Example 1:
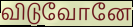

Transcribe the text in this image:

விடுவோனே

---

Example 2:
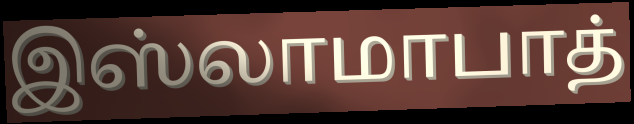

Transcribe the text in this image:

இஸ்லாமாபாத்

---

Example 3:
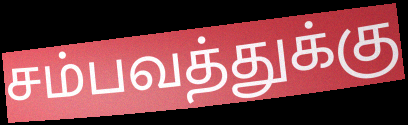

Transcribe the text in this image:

சம்பவத்துக்கு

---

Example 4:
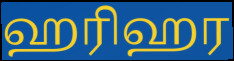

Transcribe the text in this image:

ஹரிஹர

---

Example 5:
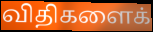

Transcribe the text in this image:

விதிகளைக்